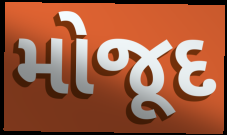
મોજૂદ